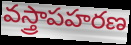
వస్త్రాపహరణ